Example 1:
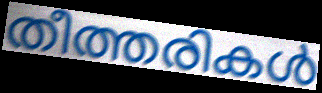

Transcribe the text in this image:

തീത്തരികൾ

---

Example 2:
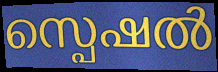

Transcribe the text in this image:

സ്പെഷൽ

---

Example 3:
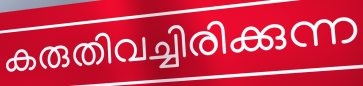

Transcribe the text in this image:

കരുതിവച്ചിരിക്കുന്ന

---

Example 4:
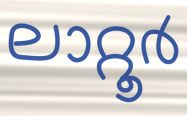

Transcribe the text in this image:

ലാറ്റൂർ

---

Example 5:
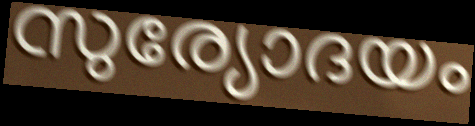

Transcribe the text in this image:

സുര്യോദയം